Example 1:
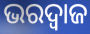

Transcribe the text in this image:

ଭରଦ୍ଵାଜ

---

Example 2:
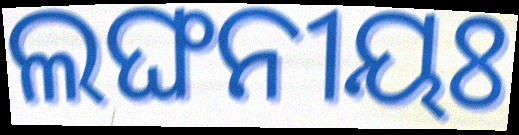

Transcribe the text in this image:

ଲଙ୍ଘନୀୟଃ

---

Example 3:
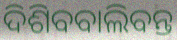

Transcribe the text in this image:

ଦିଶିବବାଲିବନ୍ତ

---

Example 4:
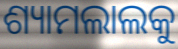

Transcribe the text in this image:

ଶ୍ୟାମଲାଲକୁ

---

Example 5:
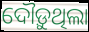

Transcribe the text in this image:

ଦୌଡ଼ୁଥିଲା